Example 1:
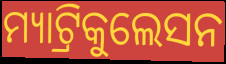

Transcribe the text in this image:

ମ୍ୟାଟ୍ରିକୁଲେସନ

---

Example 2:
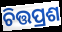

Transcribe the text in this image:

ଚିତ୍ତପ୍ରଶ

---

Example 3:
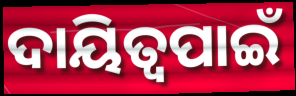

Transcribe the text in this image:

ଦାୟିତ୍ୱପାଇଁ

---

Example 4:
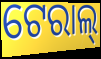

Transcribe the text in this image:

ଟେରାଲ୍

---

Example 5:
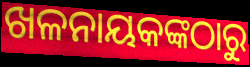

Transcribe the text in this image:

ଖଳନାୟକଙ୍କଠାରୁ